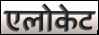
एलोकेट